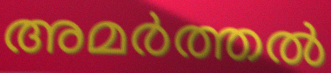
അമർത്തൽ